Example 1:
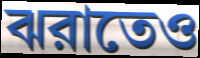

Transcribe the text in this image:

ঝরাতেও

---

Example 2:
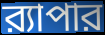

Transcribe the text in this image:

র‍্যাপার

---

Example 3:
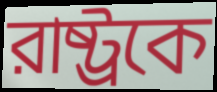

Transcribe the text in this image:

রাষ্ট্রকে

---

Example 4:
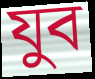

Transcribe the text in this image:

যুব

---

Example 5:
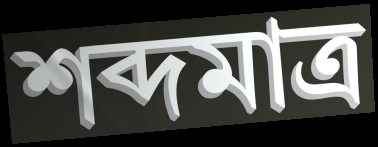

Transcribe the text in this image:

শব্দমাত্র